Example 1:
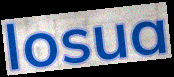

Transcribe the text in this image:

Iosua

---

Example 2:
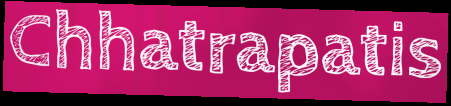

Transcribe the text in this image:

Chhatrapatis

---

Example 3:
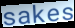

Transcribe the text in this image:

sakes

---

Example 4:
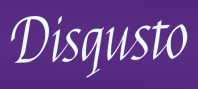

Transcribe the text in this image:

Disqusto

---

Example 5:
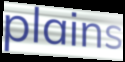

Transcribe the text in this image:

plains